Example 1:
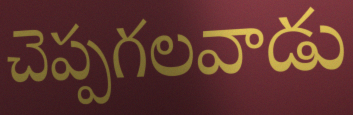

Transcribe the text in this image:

చెప్పగలవాడు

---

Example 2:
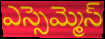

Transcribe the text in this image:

ఎస్సెమ్మెస్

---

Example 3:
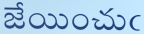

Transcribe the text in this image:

జేయించుఁ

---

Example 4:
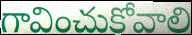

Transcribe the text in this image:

గావించుకోవాలి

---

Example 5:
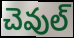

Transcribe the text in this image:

చెవుల్